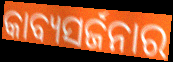
କାବ୍ୟସର୍ଜନାର